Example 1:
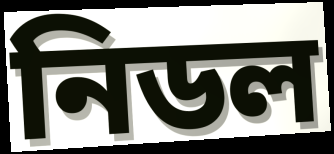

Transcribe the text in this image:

নিডল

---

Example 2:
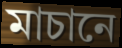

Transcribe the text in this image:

মাচানে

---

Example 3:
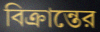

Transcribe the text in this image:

বিক্রান্তের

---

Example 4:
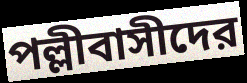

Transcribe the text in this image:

পল্লীবাসীদের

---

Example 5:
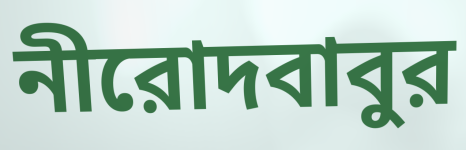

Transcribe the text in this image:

নীরোদবাবুর